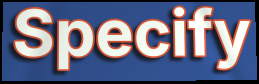
Specify